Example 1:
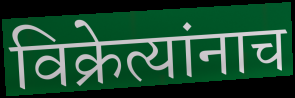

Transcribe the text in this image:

विक्रेत्यांनाच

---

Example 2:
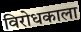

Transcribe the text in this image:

विरोधकाला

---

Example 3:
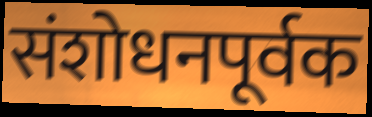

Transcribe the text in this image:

संशोधनपूर्वक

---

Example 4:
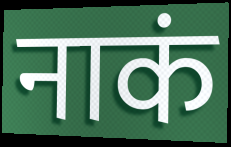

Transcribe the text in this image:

नाकं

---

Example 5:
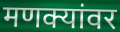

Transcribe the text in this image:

मणक्यांवर